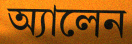
অ্যালেন